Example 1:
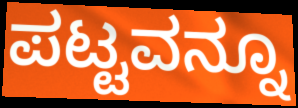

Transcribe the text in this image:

ಪಟ್ಟವನ್ನೂ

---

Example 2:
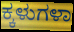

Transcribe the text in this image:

ಕ್ಕಳುಗಳಾ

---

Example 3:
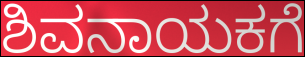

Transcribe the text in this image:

ಶಿವನಾಯಕಗೆ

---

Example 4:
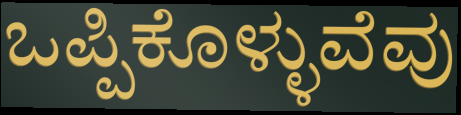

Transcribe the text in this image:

ಒಪ್ಪಿಕೊಳ್ಳುವೆವು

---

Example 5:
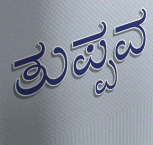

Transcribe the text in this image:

ತುಪ್ಪವ